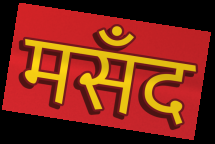
मसँद